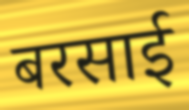
बरसाई